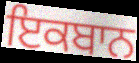
ਇਕਬਾਨ